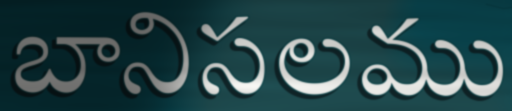
బానిసలము